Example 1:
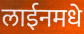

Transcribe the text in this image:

लाईनमधे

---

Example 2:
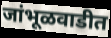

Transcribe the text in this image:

जांभूळवाडीत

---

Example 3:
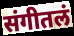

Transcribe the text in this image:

संगीतलं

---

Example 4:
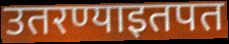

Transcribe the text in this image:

उतरण्याइतपत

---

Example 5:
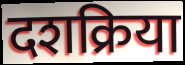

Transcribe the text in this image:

दशक्रिया